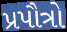
પ્રપૌત્રો